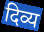
दिव्य